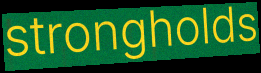
strongholds